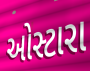
ઓસ્ટારા